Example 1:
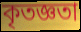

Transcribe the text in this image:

কৃতজ্ঞতা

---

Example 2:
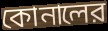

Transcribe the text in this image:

কোনালের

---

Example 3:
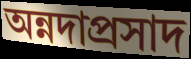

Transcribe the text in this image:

অন্নদাপ্রসাদ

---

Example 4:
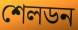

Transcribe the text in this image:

শেলডন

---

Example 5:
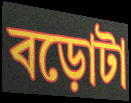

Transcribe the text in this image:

বড়োটা